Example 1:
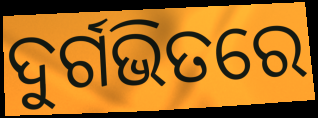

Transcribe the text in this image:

ଦୁର୍ଗଭିତରେ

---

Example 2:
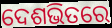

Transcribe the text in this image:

ଦେଶଭିତରେ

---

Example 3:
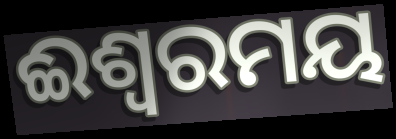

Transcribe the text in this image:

ଈଶ୍ଵରମୟ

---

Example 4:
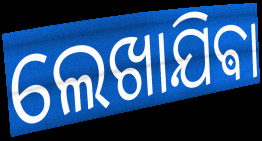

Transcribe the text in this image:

ଲେଖାଯିଵା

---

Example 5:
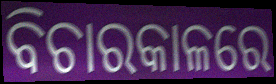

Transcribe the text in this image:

ବିଚାରକାଳରେ